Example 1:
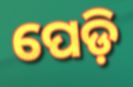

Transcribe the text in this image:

ପେଡ଼ି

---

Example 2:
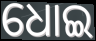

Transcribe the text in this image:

ଧୋଇ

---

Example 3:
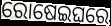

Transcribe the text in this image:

ରୋଷେଇଘରେ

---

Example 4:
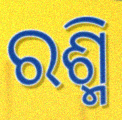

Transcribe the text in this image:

ରଶ୍ମି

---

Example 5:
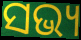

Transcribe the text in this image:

ସଭ୍ୟ